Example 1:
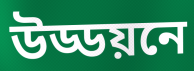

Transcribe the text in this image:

উড্ডয়নে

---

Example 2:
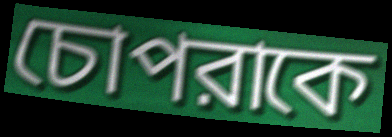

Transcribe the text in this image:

চোপরাকে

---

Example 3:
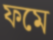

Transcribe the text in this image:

ফমে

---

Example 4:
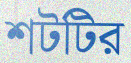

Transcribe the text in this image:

শটটির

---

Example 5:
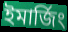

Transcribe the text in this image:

ইমার্জিং